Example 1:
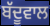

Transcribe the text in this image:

ਬੱਦੂਵਾਲ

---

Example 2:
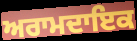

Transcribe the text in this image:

ਅਰਾਮਦਾਇਕ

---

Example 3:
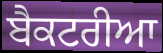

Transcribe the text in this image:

ਬੈਕਟਰੀਆ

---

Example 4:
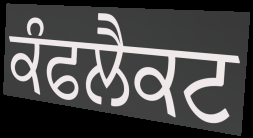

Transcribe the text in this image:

ਕੰਫਲੈਕਟ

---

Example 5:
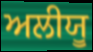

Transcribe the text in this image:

ਅਲੀਯੂ